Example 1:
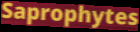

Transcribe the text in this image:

Saprophytes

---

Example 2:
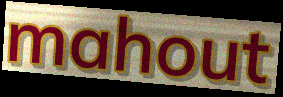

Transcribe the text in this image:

mahout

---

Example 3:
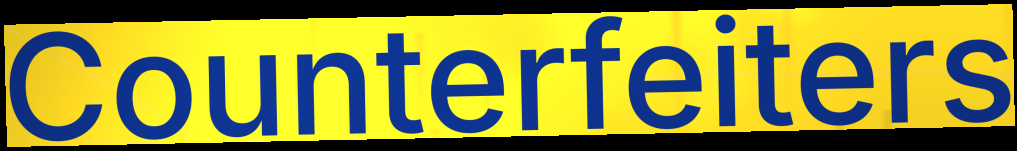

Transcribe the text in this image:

Counterfeiters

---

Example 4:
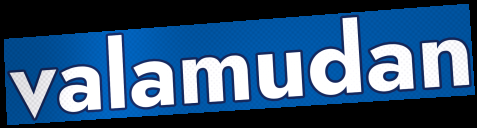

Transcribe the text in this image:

valamudan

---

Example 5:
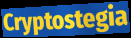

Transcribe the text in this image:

Cryptostegia